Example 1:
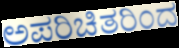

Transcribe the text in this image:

ಅಪರಿಚಿತರಿಂದ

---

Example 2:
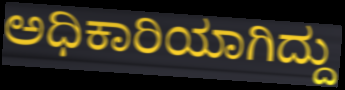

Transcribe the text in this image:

ಅಧಿಕಾರಿಯಾಗಿದ್ದು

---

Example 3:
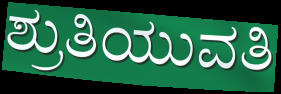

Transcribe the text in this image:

ಶ್ರುತಿಯುವತಿ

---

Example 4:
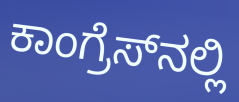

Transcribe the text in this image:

ಕಾಂಗ್ರೆಸ್‍ನಲ್ಲಿ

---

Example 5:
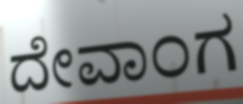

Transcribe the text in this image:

ದೇವಾಂಗ